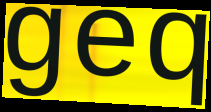
geq